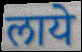
लाये